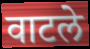
वाटले